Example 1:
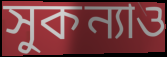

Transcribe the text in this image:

সুকন্যাও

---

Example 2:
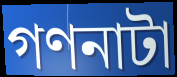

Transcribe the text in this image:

গণনাটা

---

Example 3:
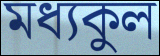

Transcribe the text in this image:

মধ্যকুল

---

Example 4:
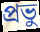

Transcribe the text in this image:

প্রভু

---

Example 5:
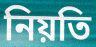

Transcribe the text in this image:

নিয়তি